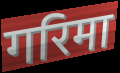
गरिमा